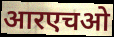
आरएचओ